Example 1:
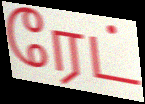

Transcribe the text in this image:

ரேட்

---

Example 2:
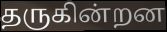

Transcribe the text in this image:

தருகின்றன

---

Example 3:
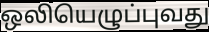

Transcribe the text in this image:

ஒலியெழுப்புவது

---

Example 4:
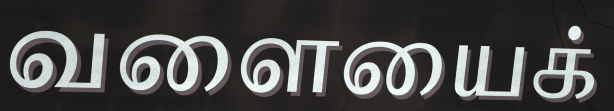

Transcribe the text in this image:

வளையைக்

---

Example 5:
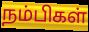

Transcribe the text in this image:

நம்பிகள்